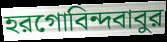
হরগোবিন্দবাবুর